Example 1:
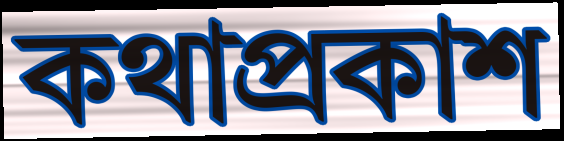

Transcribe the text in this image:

কথাপ্রকাশ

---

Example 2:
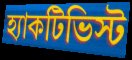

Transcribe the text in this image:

হ্যাকটিভিস্ট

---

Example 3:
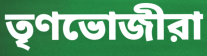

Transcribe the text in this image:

তৃণভোজীরা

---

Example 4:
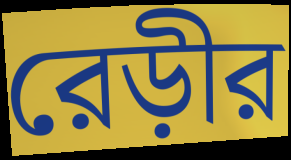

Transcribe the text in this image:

রেড়ীর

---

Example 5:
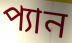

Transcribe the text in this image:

প্যান